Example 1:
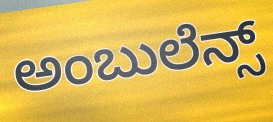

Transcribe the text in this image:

ಅಂಬುಲೆನ್ಸ್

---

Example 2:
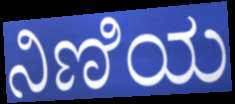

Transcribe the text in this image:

ನಿಣಿಯ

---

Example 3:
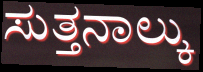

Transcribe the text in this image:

ಸುತ್ತನಾಲ್ಕು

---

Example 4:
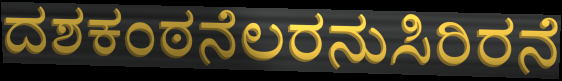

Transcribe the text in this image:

ದಶಕಂಠನೆಲರನುಸಿರಿರನೆ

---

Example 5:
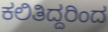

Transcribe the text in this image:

ಕಲಿತಿದ್ದರಿಂದ